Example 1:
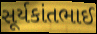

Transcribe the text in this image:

સૂર્યકાંતભાઈ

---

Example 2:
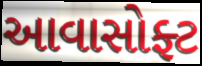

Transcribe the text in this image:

આવાસોફ્ટ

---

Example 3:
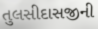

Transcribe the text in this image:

તુલસીદાસજીની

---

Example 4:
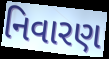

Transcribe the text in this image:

નિવારણ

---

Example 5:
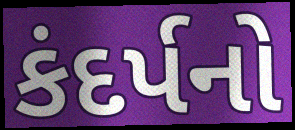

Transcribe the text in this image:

કંદર્પનો